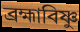
ব্রহ্মাবিষ্ণু